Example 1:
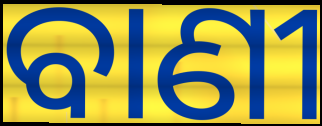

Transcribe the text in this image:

ବାଣୀ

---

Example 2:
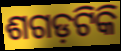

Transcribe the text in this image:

ଶଗଡ଼ଟିକି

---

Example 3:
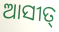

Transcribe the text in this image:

ଆସୀତ୍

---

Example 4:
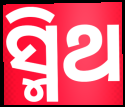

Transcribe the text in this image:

ସ୍ମିଥ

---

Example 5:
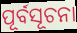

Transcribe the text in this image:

ପୂର୍ବସୂଚନା